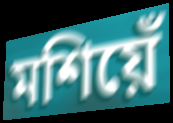
মশিয়েঁ